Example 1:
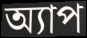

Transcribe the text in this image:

অ্যাপ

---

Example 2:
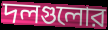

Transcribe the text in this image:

দলগুলোর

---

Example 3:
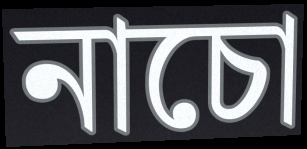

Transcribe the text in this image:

নাচো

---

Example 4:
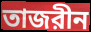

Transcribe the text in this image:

তাজরীন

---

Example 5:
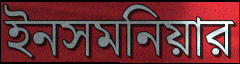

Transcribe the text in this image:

ইনসমনিয়ার